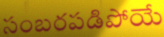
సంబరపడిపోయే